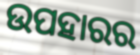
ଉପହାରର